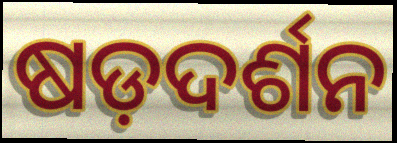
ଷଡ଼ଦର୍ଶନ